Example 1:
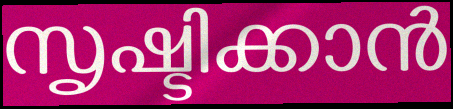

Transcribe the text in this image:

സൃഷ്ടിക്കാൻ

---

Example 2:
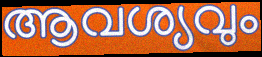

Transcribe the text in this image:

ആവശ്യവും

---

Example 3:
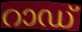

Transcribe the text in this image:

റാഡ്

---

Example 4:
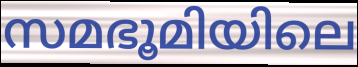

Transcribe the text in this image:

സമഭൂമിയിലെ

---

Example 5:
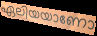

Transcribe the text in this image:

ഏലിയയാണോ